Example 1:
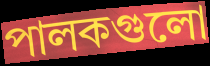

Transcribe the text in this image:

পালকগুলো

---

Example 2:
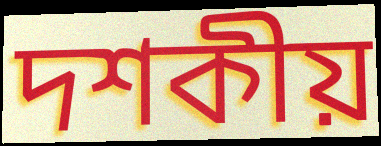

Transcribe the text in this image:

দশকীয়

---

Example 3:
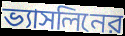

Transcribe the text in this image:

ভ্যাসলিনের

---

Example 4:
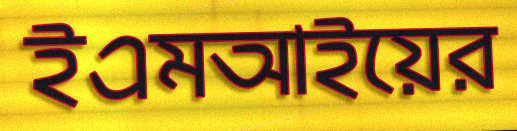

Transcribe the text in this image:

ইএমআইয়ের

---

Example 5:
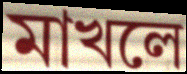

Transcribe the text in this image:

মাখলে